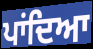
ਪਾਂਦਿਆ